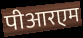
पीआरएम